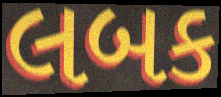
લબક